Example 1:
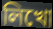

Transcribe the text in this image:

লিখো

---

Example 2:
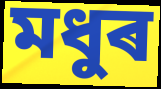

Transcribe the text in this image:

মধুৰ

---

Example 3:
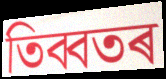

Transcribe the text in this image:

তিব্বতৰ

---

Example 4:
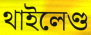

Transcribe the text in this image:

থাইলেণ্ড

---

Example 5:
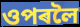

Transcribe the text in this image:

ওপৰলৈ